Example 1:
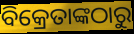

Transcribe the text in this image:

ବିକ୍ରେତାଙ୍କଠାରୁ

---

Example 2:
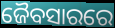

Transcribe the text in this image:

ଜୈବସାରରେ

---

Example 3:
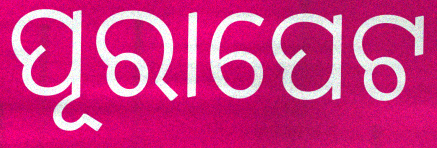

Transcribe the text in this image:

ପୂରାପେଟ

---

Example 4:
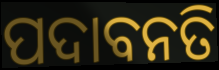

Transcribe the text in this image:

ପଦାବନତି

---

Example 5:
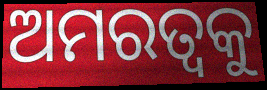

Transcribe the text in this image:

ଅମରତ୍ୱକୁ